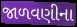
જાળવણીના